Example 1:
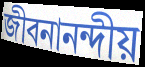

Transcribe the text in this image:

জীবনানন্দীয়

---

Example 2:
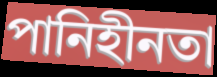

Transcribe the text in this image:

পানিহীনতা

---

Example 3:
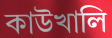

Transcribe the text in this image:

কাউখালি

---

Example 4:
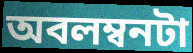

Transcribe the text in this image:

অবলম্বনটা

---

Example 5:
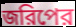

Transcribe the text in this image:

জরিপের